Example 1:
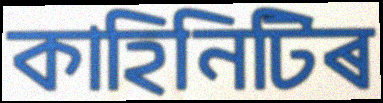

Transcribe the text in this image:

কাহিনিটিৰ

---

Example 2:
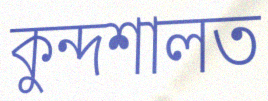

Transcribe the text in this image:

কুন্দশালত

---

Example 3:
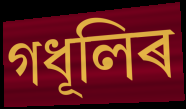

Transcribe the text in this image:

গধূলিৰ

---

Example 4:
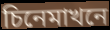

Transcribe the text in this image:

চিনেমাখনে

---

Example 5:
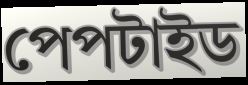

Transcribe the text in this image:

পেপটাইড